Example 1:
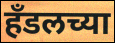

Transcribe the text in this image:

हॅंडलच्या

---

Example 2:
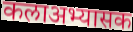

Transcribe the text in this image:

कलाअभ्यासक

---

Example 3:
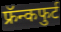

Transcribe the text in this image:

फ्रॅन्कफुर्ट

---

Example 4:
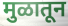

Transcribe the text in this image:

मुळातून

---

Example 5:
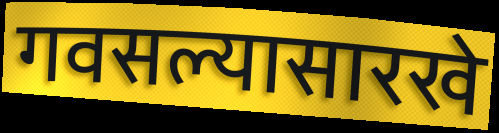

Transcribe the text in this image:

गवसल्यासारखे